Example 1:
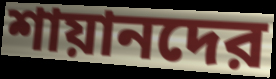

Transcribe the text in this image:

শায়ানদের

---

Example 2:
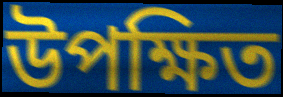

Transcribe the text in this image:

উপক্ষিত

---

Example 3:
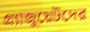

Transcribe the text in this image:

গ্র্যাজুয়েটদের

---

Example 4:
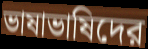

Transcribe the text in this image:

ভাষাভাষিদের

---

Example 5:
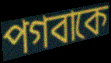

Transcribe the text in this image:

পগবাকে